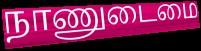
நாணுடைமை